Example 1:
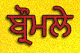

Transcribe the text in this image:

ਬ੍ਰੌਮਲੇ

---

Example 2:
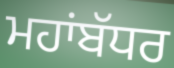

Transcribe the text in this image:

ਮਹਾਂਬੱਧਰ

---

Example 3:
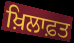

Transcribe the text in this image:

ਖ਼ਿਲਾਫ਼ਤ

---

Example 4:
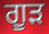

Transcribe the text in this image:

ਗੂੜ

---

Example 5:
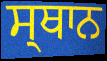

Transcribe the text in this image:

ਸ੍ਥਾਨ